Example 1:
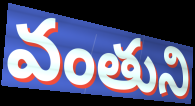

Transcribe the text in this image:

వంతుని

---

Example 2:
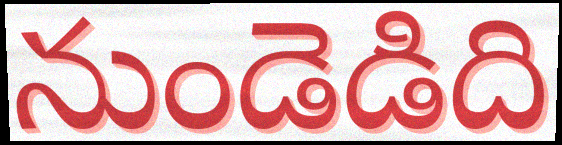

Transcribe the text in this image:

నుండెడిది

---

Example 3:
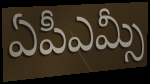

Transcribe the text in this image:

ఏపీఎమ్సీ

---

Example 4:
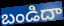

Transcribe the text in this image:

బండిదా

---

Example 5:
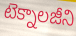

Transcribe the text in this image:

టెక్నాలజీని